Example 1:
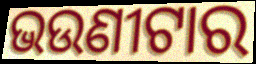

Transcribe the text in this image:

ଭଉଣୀଟାର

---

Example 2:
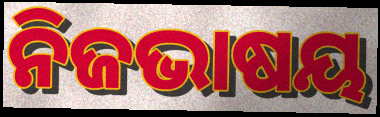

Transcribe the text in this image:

ନିଜଭାଷୟ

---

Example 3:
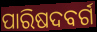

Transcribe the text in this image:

ପାରିଷଦବର୍ଗ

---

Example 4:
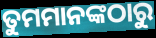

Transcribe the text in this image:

ତୁମମାନଙ୍କଠାରୁ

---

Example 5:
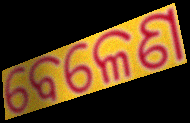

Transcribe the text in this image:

ବେଳେଣ